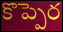
కొప్పెర